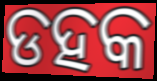
ଡହକ